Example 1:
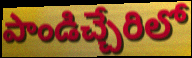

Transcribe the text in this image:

పాండిచ్చేరిలో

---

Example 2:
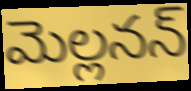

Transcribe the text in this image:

మెల్లనన్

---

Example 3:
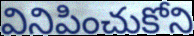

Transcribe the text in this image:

వినిపించుకోని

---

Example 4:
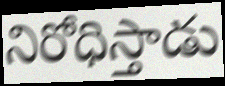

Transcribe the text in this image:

నిరోధిస్తాడు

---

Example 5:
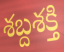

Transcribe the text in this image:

శబ్దశక్తి